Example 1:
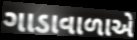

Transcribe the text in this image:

ગાડાવાળાએ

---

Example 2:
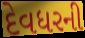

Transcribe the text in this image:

દેવધરની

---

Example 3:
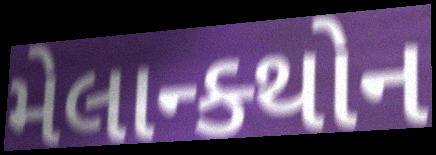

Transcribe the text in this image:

મેલાન્ક્થોન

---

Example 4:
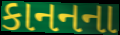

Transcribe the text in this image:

કાનનના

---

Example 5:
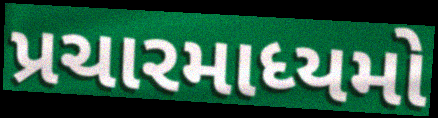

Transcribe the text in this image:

પ્રચારમાધ્યમો